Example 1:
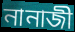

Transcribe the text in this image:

নানাজী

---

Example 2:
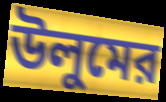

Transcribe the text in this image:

উলুমের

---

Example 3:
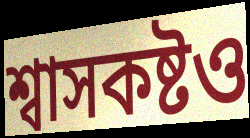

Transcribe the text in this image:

শ্বাসকষ্টও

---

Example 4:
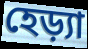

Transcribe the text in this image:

হেড়্যা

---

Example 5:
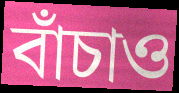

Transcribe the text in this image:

বাঁচাও